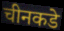
चीनकडे